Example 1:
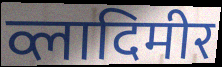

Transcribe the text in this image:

व्लादिमीर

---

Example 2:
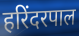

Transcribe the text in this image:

हरिंदरपाल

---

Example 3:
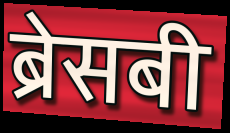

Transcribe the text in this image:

ब्रेसबी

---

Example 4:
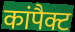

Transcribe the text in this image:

कांपैक्ट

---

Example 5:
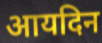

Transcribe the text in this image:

आयदिन